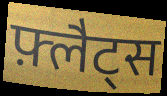
फ़्लैट्स